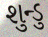
શુન્ડુ